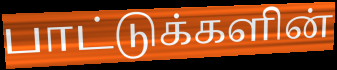
பாட்டுக்களின்